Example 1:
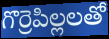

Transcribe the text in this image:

గొర్రెపిల్లలతో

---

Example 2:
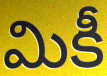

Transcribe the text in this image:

మికీ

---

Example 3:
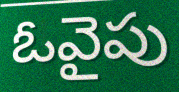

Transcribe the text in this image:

ఓవైపు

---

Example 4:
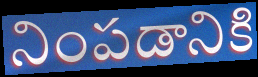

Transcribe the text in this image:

నింపడానికి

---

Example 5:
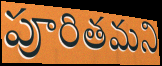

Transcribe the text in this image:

పూరితమని